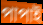
পাপাই